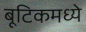
बूटिकमध्ये